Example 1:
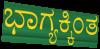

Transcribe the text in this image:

ಭಾಗ್ಯಕ್ಕಿಂತ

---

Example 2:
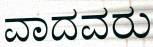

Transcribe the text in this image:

ವಾದವರು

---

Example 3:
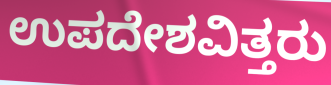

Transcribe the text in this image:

ಉಪದೇಶವಿತ್ತರು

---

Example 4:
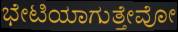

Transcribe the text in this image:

ಭೇಟಿಯಾಗುತ್ತೇವೋ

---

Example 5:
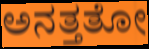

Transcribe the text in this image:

ಅನತ್ತತೋ